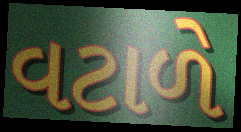
વટાળે